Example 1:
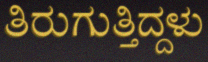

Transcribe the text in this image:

ತಿರುಗುತ್ತಿದ್ದಳು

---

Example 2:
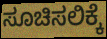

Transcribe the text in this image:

ಸೂಚಿಸಲಿಕ್ಕೆ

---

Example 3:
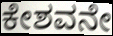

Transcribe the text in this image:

ಕೇಶವನೇ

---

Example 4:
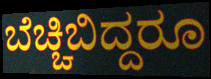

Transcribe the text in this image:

ಬೆಚ್ಚಿಬಿದ್ದರೂ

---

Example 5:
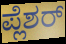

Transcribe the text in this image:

ಪ್ಲೆಶರ್